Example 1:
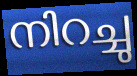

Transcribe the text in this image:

നിറച്ചു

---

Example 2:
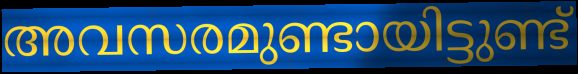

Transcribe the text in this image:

അവസരമുണ്ടായിട്ടുണ്ട്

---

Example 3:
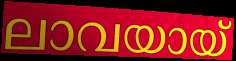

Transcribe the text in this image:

ലാവയായ്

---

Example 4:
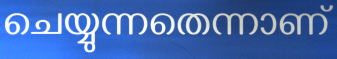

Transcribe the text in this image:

ചെയ്യുന്നതെന്നാണ്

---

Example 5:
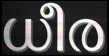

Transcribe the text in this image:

ധീര